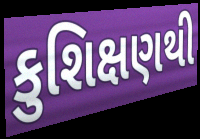
કુશિક્ષણથી